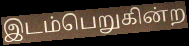
இடம்பெறுகின்ற